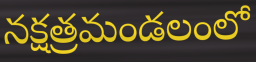
నక్షత్రమండలంలో